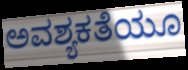
ಅವಶ್ಯಕತೆಯೂ